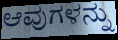
ಆವುಗಳನ್ನು